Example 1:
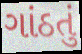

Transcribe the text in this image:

ગાંઠતું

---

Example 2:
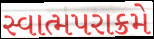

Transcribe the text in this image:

સ્વાત્મપરાક્રમે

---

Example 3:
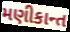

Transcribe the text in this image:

મણીકાન્ત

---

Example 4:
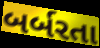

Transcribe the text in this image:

બર્બરતા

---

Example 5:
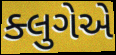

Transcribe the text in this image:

ક્લુગેએ